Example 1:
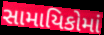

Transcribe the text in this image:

સામાયિકોમાં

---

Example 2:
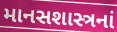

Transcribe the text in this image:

માનસશાસ્ત્રનાં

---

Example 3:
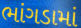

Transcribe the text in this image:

ભાંગડામાં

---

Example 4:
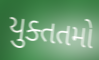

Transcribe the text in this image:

યુક્તતમો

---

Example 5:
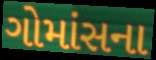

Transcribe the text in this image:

ગોમાંસના